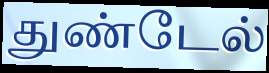
துண்டேல்